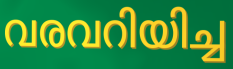
വരവറിയിച്ച